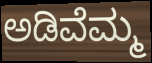
ಅಡಿವೆಮ್ಮ